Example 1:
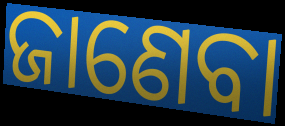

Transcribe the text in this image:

ଜାଣେବା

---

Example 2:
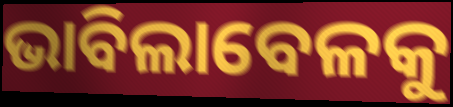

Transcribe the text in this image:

ଭାବିଲାବେଳକୁ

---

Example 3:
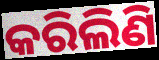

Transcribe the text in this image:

କରିଲିଣି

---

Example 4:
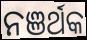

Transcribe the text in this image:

ନଞର୍ଥକ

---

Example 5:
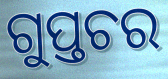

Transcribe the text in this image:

ଗୁପ୍ତଚର